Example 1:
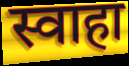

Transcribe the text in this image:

स्वाहा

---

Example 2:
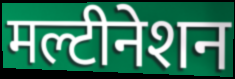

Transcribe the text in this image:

मल्टीनेशन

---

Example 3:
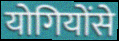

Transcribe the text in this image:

योगियोंसे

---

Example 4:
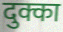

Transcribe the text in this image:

दुक्‍का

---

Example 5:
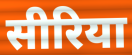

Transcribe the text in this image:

सीरिया